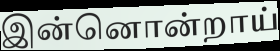
இன்னொன்றாய்